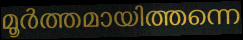
മൂർത്തമായിത്തന്നെ